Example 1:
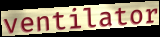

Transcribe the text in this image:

ventilator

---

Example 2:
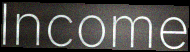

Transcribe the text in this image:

Income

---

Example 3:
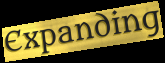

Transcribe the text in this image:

Expanding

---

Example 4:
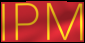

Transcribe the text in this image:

IPM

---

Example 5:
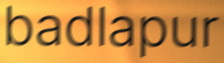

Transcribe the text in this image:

badlapur